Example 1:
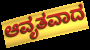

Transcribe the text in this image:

ಆವೃತವಾದ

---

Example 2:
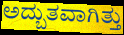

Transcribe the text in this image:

ಅದ್ಬುತವಾಗಿತ್ತು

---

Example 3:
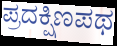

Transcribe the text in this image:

ಪ್ರದಕ್ಷಿಣಪಥ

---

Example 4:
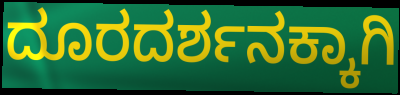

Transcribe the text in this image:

ದೂರದರ್ಶನಕ್ಕಾಗಿ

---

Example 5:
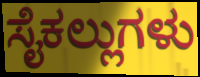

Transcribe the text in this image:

ಸೈಕಲ್ಲುಗಳು